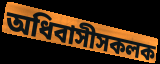
অধিবাসীসকলক